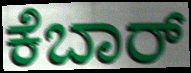
ಕೆಬಾರ್